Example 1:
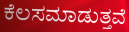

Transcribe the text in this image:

ಕೆಲಸಮಾಡುತ್ತವೆ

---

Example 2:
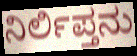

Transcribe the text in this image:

ನಿರ್ಲಿಪ್ತನು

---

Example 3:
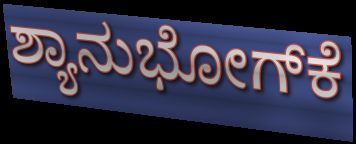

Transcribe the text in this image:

ಶ್ಯಾನುಭೋಗ್‌ಕೆ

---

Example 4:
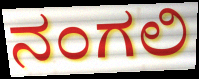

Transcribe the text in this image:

ನಂಗಲಿ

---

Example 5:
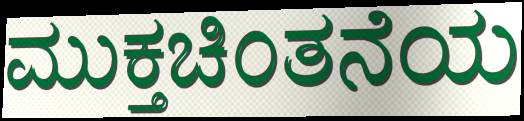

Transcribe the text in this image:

ಮುಕ್ತಚಿಂತನೆಯ